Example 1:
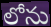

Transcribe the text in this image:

లోను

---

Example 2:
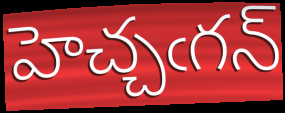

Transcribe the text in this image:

హెచ్చఁగన్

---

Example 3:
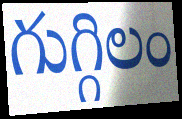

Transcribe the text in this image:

గుగ్గిలం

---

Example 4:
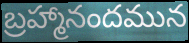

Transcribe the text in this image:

బ్రహ్మానందమున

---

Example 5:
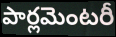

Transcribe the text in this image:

పార్లమెంటరీ